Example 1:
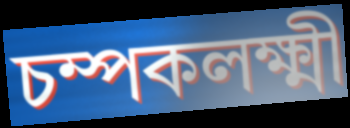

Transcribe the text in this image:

চম্পকলক্ষ্মী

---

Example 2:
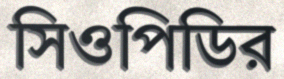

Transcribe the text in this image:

সিওপিডির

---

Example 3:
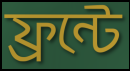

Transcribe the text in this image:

ফ্রন্টে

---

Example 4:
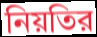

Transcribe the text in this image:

নিয়তির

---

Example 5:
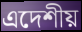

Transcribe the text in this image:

এদেশীয়